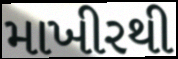
માખીરથી